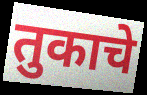
तुकाचे